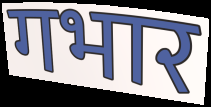
गभार